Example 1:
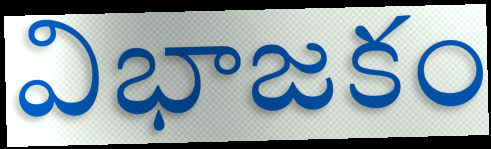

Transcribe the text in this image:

విభాజకం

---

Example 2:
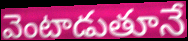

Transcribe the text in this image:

వెంటాడుతూనే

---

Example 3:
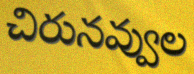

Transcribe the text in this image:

చిరునవ్వుల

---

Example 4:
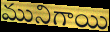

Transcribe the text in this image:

మునిగాయి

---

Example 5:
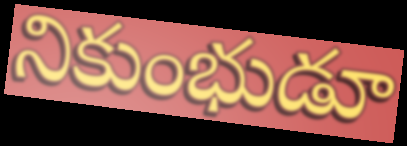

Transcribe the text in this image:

నికుంభుడూ